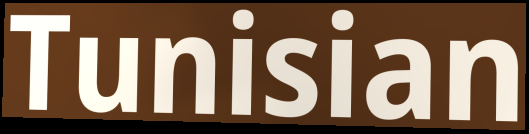
Tunisian